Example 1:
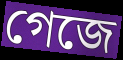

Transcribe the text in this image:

গেজে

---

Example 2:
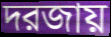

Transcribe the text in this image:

দরজায়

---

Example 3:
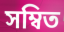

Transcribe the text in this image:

সম্বিত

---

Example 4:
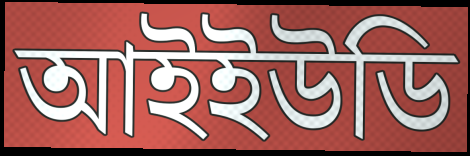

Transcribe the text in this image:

আইইউডি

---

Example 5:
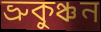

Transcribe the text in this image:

ভ্রুকুঞ্চন